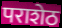
पराशेठ